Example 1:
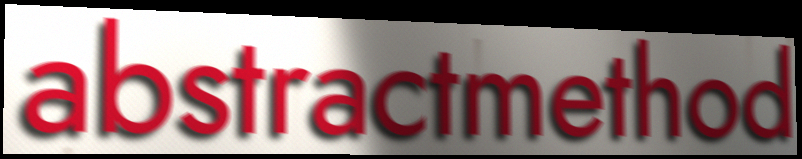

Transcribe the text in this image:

abstractmethod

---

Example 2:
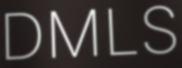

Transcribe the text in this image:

DMLS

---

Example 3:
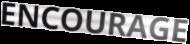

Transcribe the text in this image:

ENCOURAGE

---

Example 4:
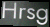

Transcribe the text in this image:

Hrsg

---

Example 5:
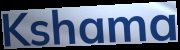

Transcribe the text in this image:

Kshama